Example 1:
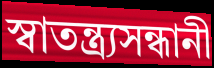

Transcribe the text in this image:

স্বাতন্ত্র্যসন্ধানী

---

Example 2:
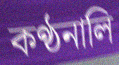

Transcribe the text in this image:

কণ্ঠনালি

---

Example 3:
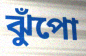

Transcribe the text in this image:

ঝুঁপো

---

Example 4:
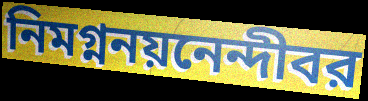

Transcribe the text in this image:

নিমগ্ননয়নেন্দীবর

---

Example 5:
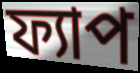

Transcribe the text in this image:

ফ্যাপ